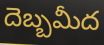
దెబ్బమీద